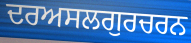
ਦਰਅਸਲਗੁਰਚਰਨ